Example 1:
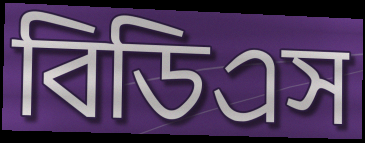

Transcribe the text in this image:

বিডিএস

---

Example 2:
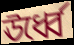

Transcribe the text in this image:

ঊর্ধ্বে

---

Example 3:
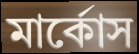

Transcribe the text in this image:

মার্কোস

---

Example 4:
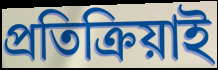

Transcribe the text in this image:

প্রতিক্রিয়াই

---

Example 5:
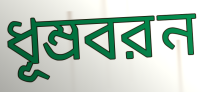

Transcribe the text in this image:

ধূম্রবরন